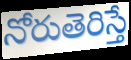
నోరుతెరిస్తే